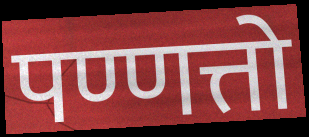
पण्णत्तो